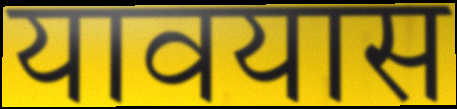
यावयास